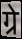
ग्रे